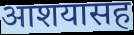
आशयासह